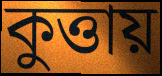
কুত্তায়